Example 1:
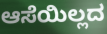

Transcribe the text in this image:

ಆಸೆಯಿಲ್ಲದ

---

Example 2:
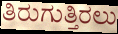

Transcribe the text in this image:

ತಿರುಗುತ್ತಿರಲು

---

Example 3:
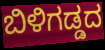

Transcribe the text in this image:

ಬಿಳಿಗಡ್ಡದ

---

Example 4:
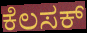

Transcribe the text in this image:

ಕೆಲಸಕ್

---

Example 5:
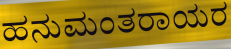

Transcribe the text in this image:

ಹನುಮಂತರಾಯರ